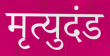
मृत्युदंड